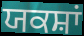
ਯਕਸ਼ਾਂ